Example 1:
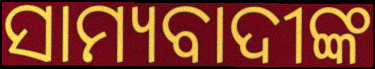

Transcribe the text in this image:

ସାମ୍ୟବାଦୀଙ୍କ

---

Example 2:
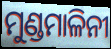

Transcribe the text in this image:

ମୁଣ୍ଡମାଳିନୀ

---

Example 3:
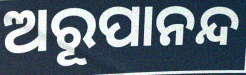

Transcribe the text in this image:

ଅରୂପାନନ୍ଦ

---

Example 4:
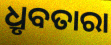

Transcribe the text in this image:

ଧ୍ରୃବତାରା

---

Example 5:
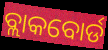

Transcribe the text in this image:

ବ୍ଲାକବୋର୍ଡ